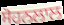
ਸੋਹਨਲਾਲ